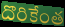
దొరికేంత